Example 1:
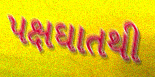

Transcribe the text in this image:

પક્ષઘાતથી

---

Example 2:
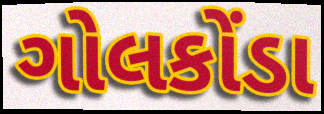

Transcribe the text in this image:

ગોલકોંડા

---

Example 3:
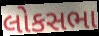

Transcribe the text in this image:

લોકસભા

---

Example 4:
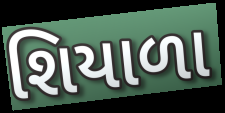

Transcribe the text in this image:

શિયાળા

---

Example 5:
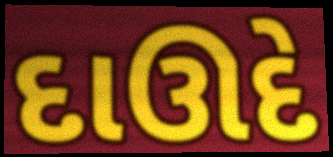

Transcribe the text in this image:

દાઊદે